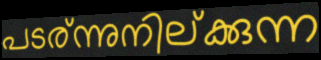
പടര്ന്നുനില്ക്കുന്ന